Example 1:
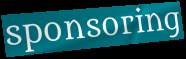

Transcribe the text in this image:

sponsoring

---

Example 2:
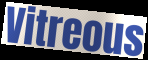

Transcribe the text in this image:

Vitreous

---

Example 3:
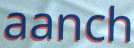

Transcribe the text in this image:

aanch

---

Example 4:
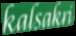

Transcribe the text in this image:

kalsakri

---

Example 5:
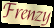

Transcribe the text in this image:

Frenzy